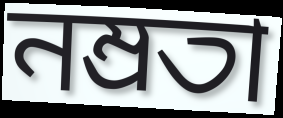
নম্রতা